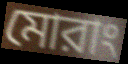
মোরাং